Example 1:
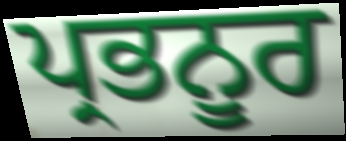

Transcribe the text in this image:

ਪ੍ਰਭਨੂਰ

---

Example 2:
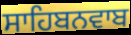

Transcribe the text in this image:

ਸਾਹਿਬਨਵਾਬ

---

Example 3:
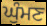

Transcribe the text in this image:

ਘੁੰਮਣ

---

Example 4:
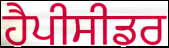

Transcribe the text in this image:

ਹੈਪੀਸੀਡਰ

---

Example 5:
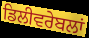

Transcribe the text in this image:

ਡਿਲੀਵਰੇਬਲਾਂ